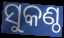
ସୁକଣ୍ଠ